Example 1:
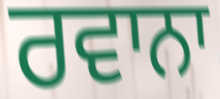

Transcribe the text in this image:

ਰਵਾਨਾ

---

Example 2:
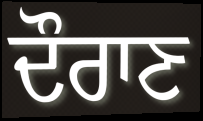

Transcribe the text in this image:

ਦੌਰਾਣ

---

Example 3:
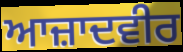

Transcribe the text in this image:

ਆਜ਼ਾਦਵੀਰ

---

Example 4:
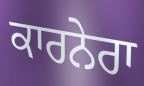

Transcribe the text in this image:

ਕਾਰਨੇਰਾ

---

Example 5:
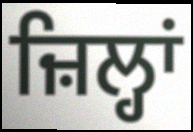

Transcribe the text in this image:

ਜ਼ਿਲ੍ਹਾਂ